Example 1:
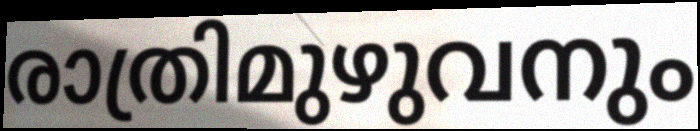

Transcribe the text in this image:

രാത്രിമുഴുവനും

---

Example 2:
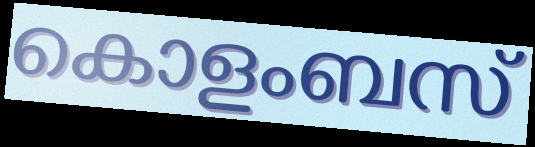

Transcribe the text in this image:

കൊളംബസ്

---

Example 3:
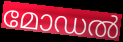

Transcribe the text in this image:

മോഡൽ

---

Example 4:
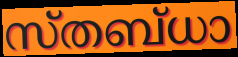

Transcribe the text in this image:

സ്തബ്ധാ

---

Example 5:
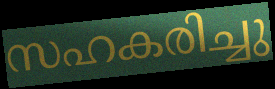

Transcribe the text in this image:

സഹകരിച്ചു